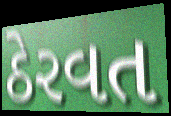
ઠેરવત